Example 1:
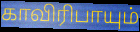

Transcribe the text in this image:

காவிரிபாயும்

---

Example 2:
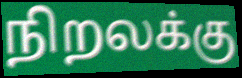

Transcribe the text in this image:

நிறலக்கு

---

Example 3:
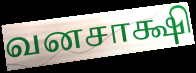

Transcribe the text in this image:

வனசாக்ஷி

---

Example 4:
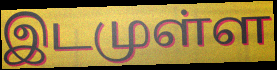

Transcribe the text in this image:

இடமுள்ள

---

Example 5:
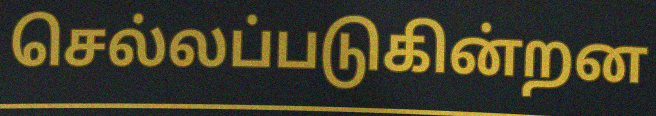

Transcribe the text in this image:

செல்லப்படுகின்றன